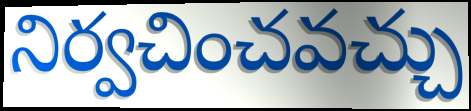
నిర్వచించవచ్చు